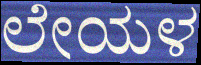
ಲೇಯಳ